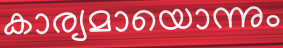
കാര്യമായൊന്നും